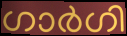
ഗാർഗി